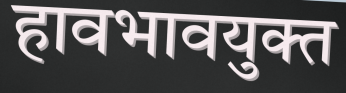
हावभावयुक्त